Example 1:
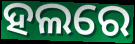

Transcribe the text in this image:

ହଲରେ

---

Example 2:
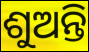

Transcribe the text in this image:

ଶୁଅନ୍ତି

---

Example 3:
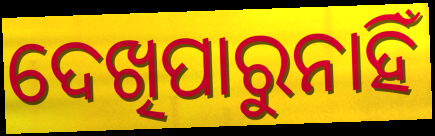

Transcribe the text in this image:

ଦେଖିପାରୁନାହିଁ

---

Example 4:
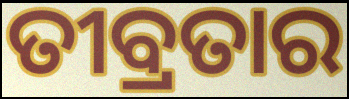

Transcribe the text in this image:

ତୀବ୍ରତାର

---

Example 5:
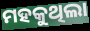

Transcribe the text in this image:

ମହକୁଥିଲା